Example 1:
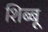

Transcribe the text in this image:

शिब्बू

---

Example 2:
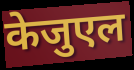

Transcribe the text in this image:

केजुएल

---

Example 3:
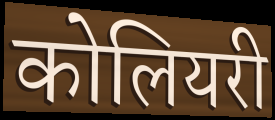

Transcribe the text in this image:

कोलियरी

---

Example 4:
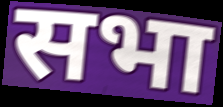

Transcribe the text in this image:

सभा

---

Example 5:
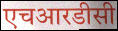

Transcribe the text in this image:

एचआरडीसी